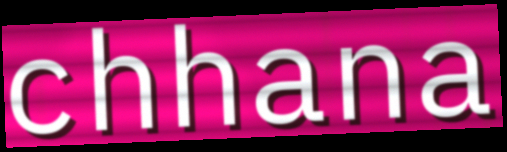
chhana